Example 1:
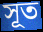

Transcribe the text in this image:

সূত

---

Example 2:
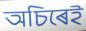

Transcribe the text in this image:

অচিৰেই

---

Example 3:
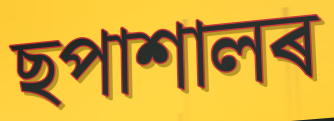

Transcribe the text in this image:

ছপাশালৰ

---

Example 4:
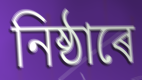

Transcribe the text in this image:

নিষ্ঠাৰে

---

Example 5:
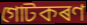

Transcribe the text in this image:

গোটকৰণ